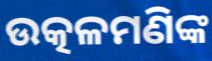
ଉତ୍କଳମଣିଙ୍କ